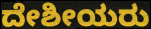
ದೇಶೀಯರು